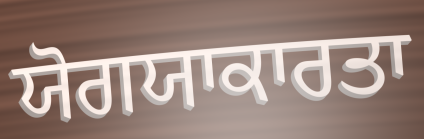
ਯੋਗਯਾਕਾਰਤਾ